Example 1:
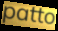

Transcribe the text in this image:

patto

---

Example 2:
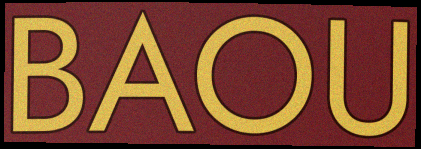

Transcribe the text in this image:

BAOU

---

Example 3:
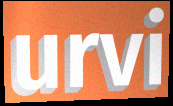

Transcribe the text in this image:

urvi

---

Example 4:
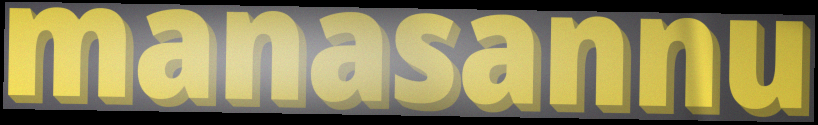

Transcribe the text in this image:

manasannu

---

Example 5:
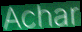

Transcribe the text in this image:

Achar